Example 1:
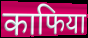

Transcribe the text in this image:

काफिया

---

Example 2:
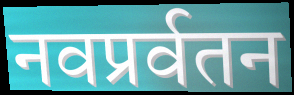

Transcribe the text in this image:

नवप्रर्वतन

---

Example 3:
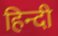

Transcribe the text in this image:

हिन्‍दी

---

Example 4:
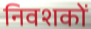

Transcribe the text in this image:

निवशकों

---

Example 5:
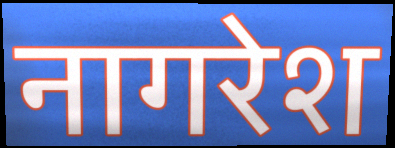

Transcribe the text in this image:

नागरेश